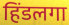
हिंडलगा